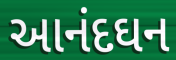
આનંદઘન